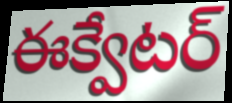
ఈక్వేటర్